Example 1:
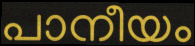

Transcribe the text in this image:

പാനീയം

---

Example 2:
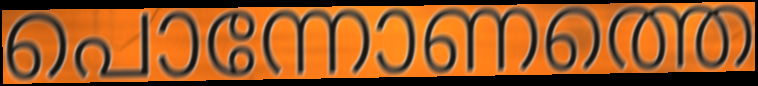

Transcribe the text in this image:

പൊന്നോണത്തെ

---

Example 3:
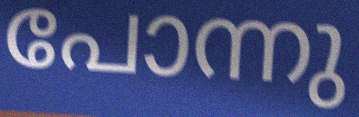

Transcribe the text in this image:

പോന്നു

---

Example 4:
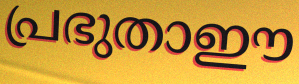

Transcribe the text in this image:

പ്രഭുതാഈ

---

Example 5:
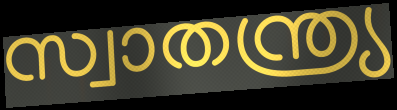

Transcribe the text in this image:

സ്വാതന്ത്ര്യ